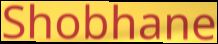
Shobhane